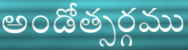
అండోత్సర్గము